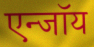
एन्जॉय